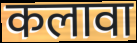
कलावा